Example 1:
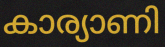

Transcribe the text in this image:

കാര്യാണി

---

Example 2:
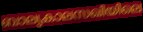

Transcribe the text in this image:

ബാല്യകാലസഖിയിലെ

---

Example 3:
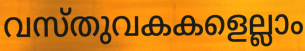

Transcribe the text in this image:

വസ്തുവകകളെല്ലാം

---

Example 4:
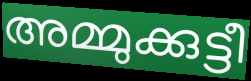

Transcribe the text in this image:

അമ്മുക്കുട്ടീ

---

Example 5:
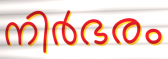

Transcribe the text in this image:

നിർഭരം